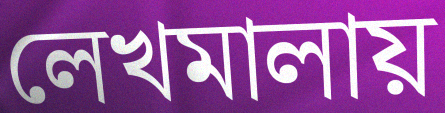
লেখমালায়